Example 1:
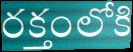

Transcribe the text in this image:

రక్తంలోకి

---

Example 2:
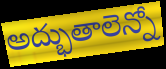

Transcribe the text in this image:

అద్భుతాలెన్నో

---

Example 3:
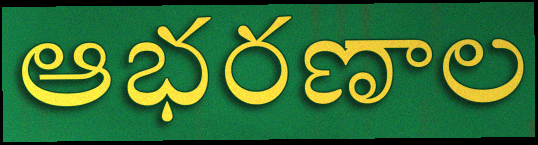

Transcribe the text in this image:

ఆభరణాల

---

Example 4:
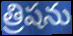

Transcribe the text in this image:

త్రిషను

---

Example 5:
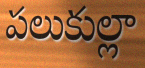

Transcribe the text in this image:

పలుకుల్లా